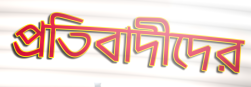
প্রতিবাদীদের